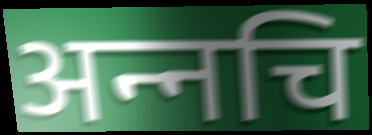
अन्नचि